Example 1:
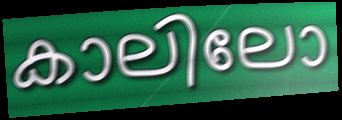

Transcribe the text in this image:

കാലിലോ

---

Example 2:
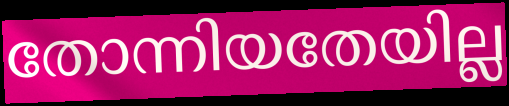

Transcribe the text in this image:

തോന്നിയതേയില്ല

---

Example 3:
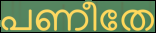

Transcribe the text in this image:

പണീതേ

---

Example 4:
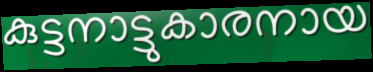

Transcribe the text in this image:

കുട്ടനാട്ടുകാരനായ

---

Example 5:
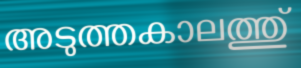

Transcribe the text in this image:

അടുത്തകാലത്തു്